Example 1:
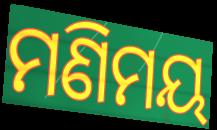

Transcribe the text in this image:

ମଣିମୟ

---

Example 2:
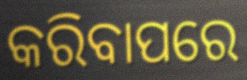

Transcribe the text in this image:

କରିବାପରେ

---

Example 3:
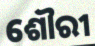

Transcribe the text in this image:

ଶୌରୀ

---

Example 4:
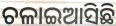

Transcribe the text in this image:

ଚଳାଇଆସିଛି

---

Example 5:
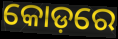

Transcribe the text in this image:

କୋଡ଼ରେ